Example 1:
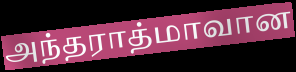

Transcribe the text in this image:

அந்தராத்மாவான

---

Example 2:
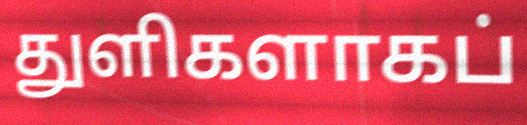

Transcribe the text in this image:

துளிகளாகப்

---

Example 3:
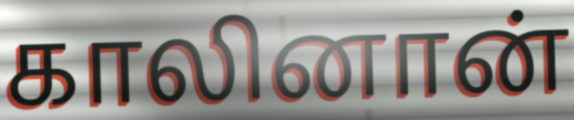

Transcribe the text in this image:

காலினான்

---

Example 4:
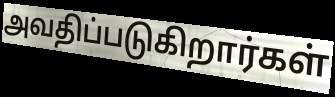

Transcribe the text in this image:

அவதிப்படுகிறார்கள்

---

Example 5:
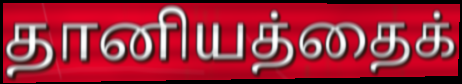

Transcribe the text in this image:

தானியத்தைக்